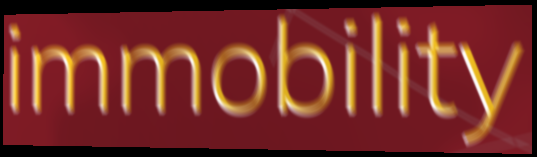
immobility